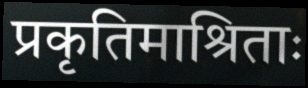
प्रकृतिमाश्रिताः